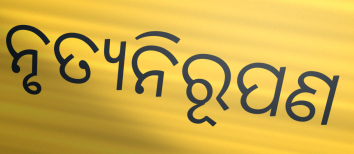
ନୃତ୍ୟନିରୂପଣ